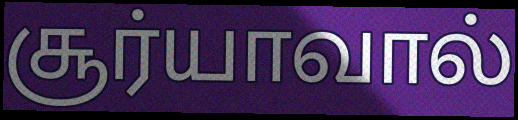
சூர்யாவால்